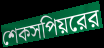
শেকসপিয়রের